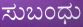
ಸುಬಂಧು